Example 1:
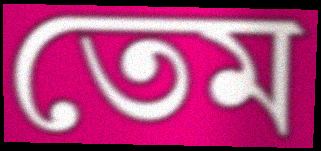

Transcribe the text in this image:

তেম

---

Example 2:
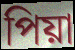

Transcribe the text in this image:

পিয়া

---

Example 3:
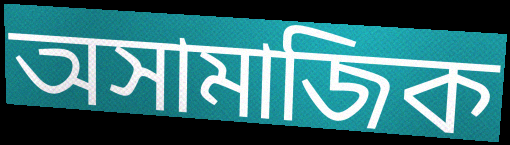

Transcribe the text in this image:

অসামাজিক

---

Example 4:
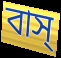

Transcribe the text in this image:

বাস্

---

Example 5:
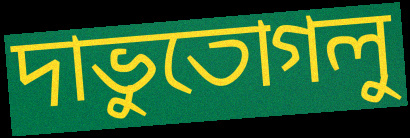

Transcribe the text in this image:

দাভুতোগলু